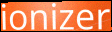
ionizer